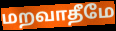
மறவாதீமே